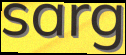
sarg